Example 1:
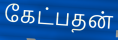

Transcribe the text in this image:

கேட்பதன்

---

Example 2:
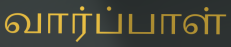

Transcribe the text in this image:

வார்ப்பாள்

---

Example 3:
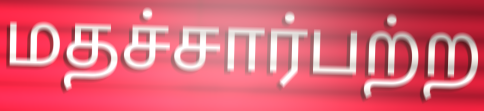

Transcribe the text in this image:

மதச்சார்பற்ற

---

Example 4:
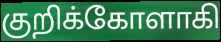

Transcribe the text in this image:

குறிக்கோளாகி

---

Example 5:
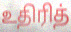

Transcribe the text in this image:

உதிரித்